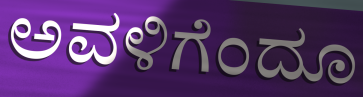
ಅವಳಿಗೆಂದೂ